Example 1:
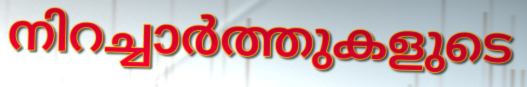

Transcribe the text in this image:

നിറച്ചാർത്തുകളുടെ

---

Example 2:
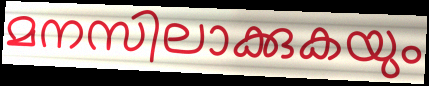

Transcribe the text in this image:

മനസിലാക്കുകയും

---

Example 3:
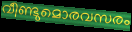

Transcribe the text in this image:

വീണ്ടുമൊരവസരം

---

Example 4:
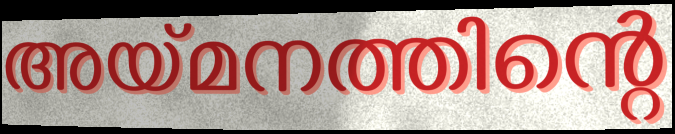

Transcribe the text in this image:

അയ്മനത്തിന്റെ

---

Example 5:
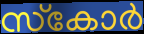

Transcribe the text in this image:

സ്‌കോർ